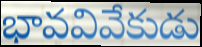
భావవివేకుడు